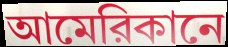
আমেরিকানে